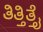
ತಿತ್ತಿತ್ತೈ